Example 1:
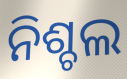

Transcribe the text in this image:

ନିଶ୍ଚଲ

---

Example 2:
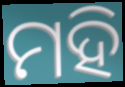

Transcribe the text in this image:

ମହି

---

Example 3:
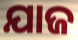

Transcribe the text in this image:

ଯାଜ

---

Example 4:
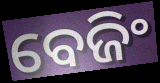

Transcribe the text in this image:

ବେଜିଂ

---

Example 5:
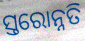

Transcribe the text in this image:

ସ୍ତରୋନ୍ନତି